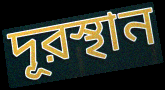
দূরস্থান